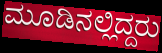
ಮೂಡಿನಲ್ಲಿದ್ದರು